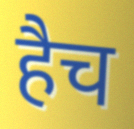
हैच